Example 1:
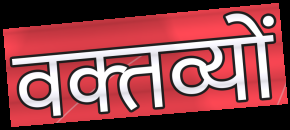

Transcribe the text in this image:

वक्‍तव्‍यों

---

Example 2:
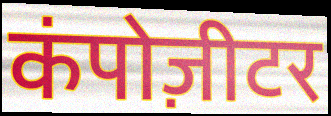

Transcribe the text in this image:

कंपोज़ीटर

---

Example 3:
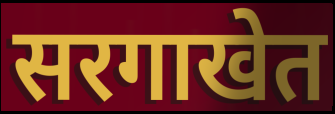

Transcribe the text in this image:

सरगाखेत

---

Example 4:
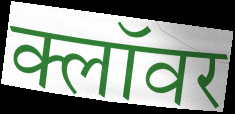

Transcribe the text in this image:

क्लॉवर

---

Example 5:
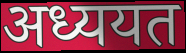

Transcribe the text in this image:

अध्ययत